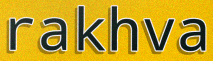
rakhva